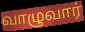
வாழுவார்